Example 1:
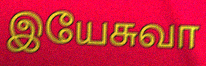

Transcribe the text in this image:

இயேசுவா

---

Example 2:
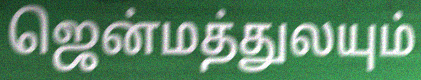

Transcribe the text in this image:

ஜென்மத்துலயும்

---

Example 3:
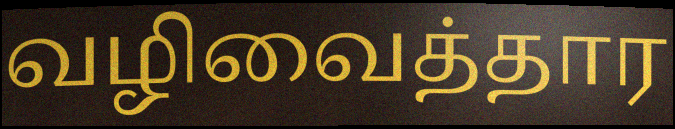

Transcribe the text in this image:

வழிவைத்தார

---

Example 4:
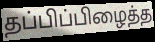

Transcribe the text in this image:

தப்பிப்பிழைத்த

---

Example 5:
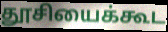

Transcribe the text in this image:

தூசியைக்கூட